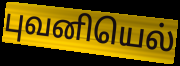
புவனியெல்